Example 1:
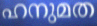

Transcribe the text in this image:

ഹനുമത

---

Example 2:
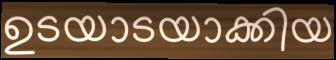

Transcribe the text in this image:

ഉടയാടയാക്കിയ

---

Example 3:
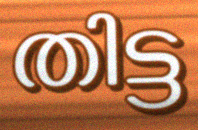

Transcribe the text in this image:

തിട്ട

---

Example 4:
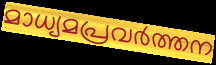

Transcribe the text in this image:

മാധ്യമപ്രവർത്തന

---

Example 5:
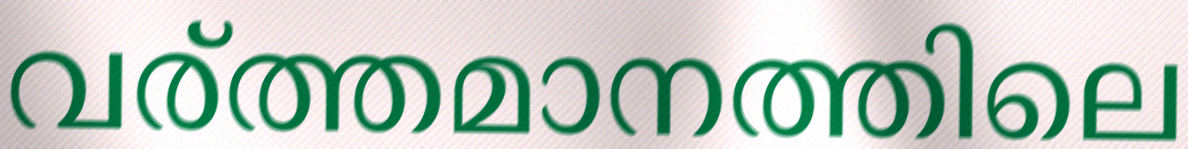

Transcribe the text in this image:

വര്ത്തമാനത്തിലെ